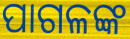
ପାଗଳଙ୍କ